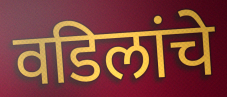
वडिलांचे